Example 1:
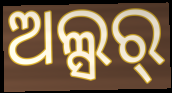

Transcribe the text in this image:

ଅଲ୍ସର୍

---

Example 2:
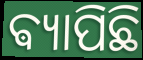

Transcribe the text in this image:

ଵ୍ୟାପିଛି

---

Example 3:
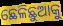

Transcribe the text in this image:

ଛେଳିଛୁଆକୁ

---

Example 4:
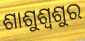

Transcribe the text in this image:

ଶାଶୁଶ୍ୱଶୁର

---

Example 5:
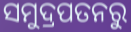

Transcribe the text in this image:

ସମୁଦ୍ରପତନରୁ